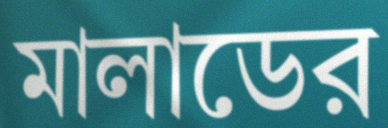
মালাডের